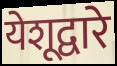
येशूद्वारे